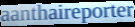
aanthaireporter